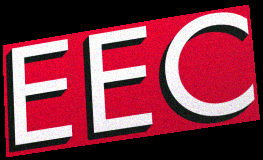
EEC